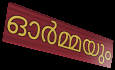
ഓർമ്മയും